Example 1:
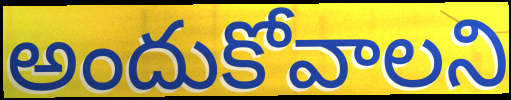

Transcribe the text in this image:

అందుకోవాలని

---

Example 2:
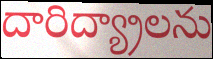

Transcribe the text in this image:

దారిద్య్రాలను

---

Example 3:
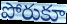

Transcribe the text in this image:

పోరుకూ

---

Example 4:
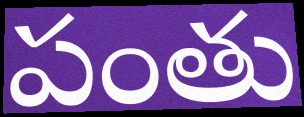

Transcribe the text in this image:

పంతు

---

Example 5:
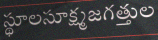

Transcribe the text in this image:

స్థూలసూక్ష్మజగత్తుల